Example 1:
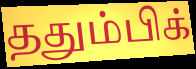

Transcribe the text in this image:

ததும்பிக்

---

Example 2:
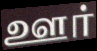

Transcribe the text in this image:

ஊர்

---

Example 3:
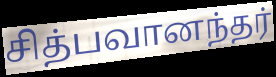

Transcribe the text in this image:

சித்பவானந்தர்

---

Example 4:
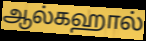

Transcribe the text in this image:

ஆல்கஹால்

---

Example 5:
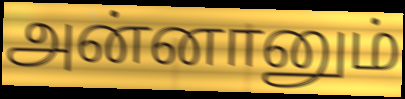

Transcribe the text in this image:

அன்னானும்